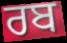
ਰਬ